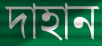
দাহান